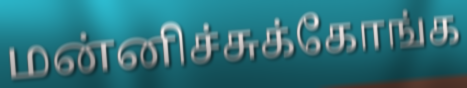
மன்னிச்சுக்கோங்க